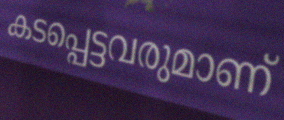
കടപ്പെട്ടവരുമാണ്